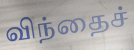
விந்தைச்